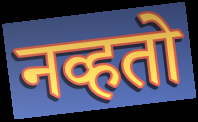
नव्हतो